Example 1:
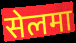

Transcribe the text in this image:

सेलमा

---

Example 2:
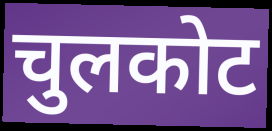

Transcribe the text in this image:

चुलकोट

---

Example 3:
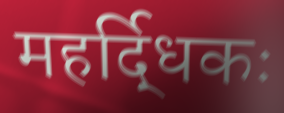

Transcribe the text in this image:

महर्द्धिकः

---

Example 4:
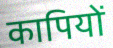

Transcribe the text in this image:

कापियों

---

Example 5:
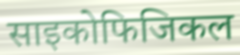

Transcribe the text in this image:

साइकोफिजिकल